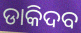
ଡାକିଦବ